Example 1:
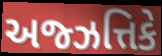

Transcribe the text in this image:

અજ્ઝત્તિકે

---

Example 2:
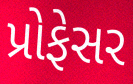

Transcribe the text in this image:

પ્રોફેસર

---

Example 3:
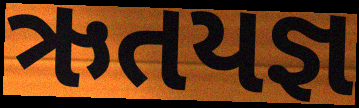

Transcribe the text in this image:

ઋતયજ્ઞ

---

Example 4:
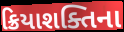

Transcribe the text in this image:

ક્રિયાશક્તિના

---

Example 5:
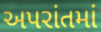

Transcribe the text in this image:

અપરાંતમાં